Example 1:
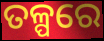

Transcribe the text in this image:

ତଳ୍ପରେ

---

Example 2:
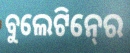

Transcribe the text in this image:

ବୁଲେଟିନ୍‍ରେ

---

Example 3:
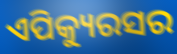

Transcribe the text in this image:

ଏପିକ୍ୟୁରସର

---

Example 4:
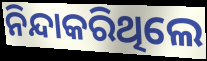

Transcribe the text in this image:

ନିନ୍ଦାକରିଥିଲେ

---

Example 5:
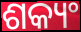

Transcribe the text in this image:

ଶକ୍ୟଂ